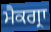
ਮੈਕਗ੍ਰਾ